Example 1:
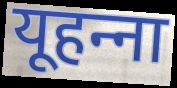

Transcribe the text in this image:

यूहन्ना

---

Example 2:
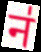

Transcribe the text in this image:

न॑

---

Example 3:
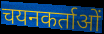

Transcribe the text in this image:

चयनकर्ताओं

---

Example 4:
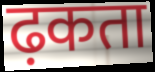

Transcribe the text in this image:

ढ़कता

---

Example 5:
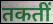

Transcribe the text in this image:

तकतीं